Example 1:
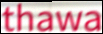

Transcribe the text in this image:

thawa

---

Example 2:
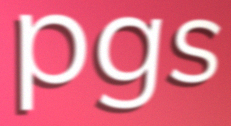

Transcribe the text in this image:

pgs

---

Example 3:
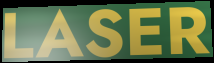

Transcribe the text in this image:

LASER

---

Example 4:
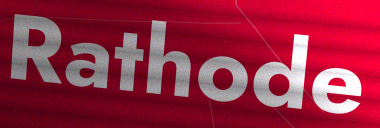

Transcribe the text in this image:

Rathode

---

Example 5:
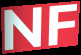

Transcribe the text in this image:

NF